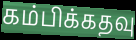
கம்பிக்கதவு